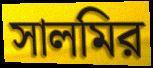
সালমির